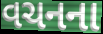
વચનના